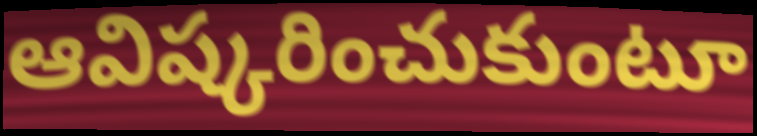
ఆవిష్కరించుకుంటూ